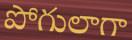
పోగులాగా